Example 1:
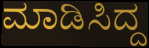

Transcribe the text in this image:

ಮಾಡಿಸಿದ್ದ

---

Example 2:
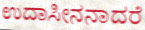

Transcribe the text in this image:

ಉದಾಸೀನನಾದರೆ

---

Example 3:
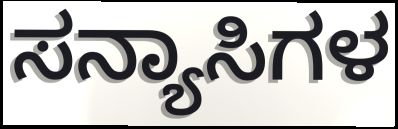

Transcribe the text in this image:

ಸನ್ಯಾಸಿಗಳ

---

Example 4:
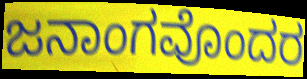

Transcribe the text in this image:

ಜನಾಂಗವೊಂದರ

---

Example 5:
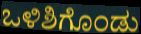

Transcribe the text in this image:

ಒಳಿಶಿಗೊಂಡು